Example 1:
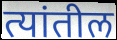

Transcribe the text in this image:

त्‍यांतील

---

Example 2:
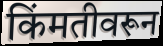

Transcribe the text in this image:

किंमतीवरून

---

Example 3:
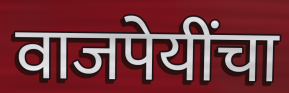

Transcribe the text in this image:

वाजपेयींचा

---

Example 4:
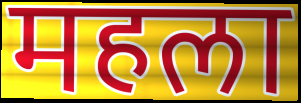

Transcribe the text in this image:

महला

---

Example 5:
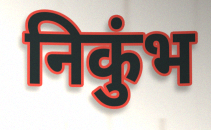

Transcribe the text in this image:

निकुंभ